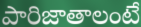
పారిజాతాలంటే